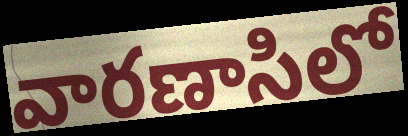
వారణాసిలో